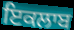
ਇਕਲਾਬ